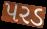
પરડ